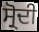
ਸ੍ਰੋਦੀ